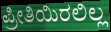
ಪ್ರೀತಿಯಿರಲಿಲ್ಲ